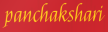
panchakshari